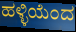
ಹಳ್ಳಿಯೆಂದ